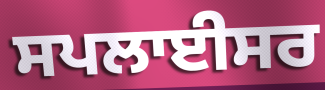
ਸਪਲਾਈਸਰ